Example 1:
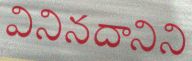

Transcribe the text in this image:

వినినదానిని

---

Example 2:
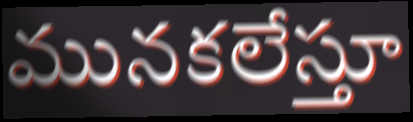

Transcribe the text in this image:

మునకలేస్తూ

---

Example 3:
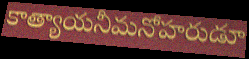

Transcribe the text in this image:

కాత్యాయనీమనోహరుడూ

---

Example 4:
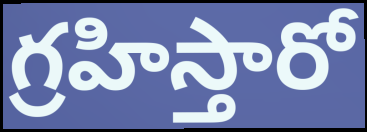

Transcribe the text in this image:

గ్రహిస్తారో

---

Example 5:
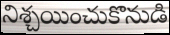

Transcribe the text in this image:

నిశ్చయించుకొనుడి